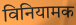
विनियामक